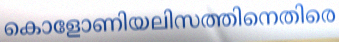
കൊളോണിയലിസത്തിനെതിരെ